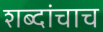
शब्दांचाच